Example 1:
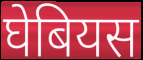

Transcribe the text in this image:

घेबियस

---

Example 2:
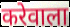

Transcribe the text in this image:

करेवाला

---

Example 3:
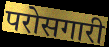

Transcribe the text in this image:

परोसगारी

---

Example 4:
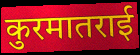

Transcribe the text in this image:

कुरमातराई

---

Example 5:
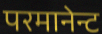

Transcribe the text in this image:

परमानेन्ट